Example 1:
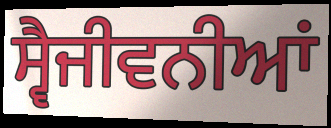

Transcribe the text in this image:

ਸ੍ਵੈਜੀਵਨੀਆਂ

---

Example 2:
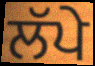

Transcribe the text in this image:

ਲੱਪੇ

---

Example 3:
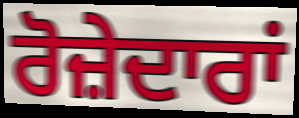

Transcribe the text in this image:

ਰੋਜ਼ੇਦਾਰਾਂ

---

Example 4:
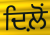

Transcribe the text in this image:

ਦਿਲ਼ੋਂ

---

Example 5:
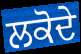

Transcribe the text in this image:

ਲਕੋਦੇ